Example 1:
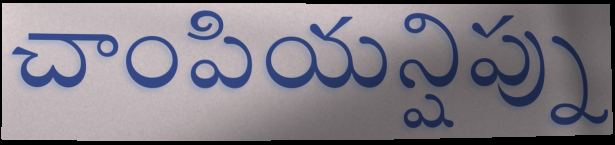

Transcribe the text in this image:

చాంపియన్షిప్ను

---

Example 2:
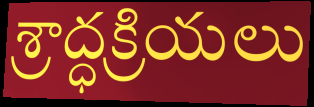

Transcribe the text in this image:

శ్రాద్ధక్రియలు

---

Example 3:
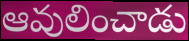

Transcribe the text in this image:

ఆవులించాడు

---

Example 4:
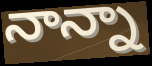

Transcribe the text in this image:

నాన్నా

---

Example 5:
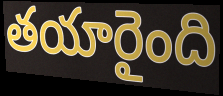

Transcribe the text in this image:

తయారైంది